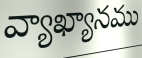
వ్యాఖ్యానము